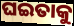
ଘଇତାକୁ